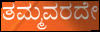
ತಮ್ಮವರದೇ